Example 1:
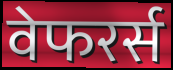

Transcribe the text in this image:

वेफरर्स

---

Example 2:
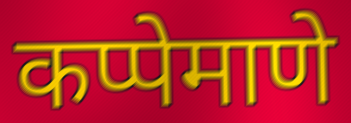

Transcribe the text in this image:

कप्पेमाणे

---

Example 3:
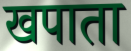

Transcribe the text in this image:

खपाता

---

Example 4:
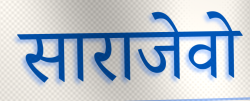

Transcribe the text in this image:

साराजेवो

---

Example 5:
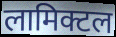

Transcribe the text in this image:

लामिक्टल